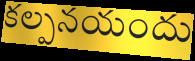
కల్పనయందు